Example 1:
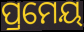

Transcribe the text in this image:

ପ୍ରମେୟ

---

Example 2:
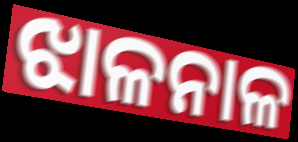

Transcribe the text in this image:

ଝାଳନାଳ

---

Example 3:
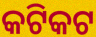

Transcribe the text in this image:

କଟିକଟ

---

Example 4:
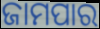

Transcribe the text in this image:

ଜାମପାର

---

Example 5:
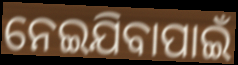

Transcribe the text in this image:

ନେଇଯିବାପାଇଁ